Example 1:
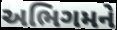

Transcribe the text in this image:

અભિગમને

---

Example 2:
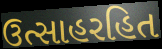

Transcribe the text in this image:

ઉત્સાહરહિત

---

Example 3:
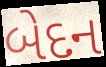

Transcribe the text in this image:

બેદન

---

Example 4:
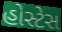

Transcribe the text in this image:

હોસ્ટેસ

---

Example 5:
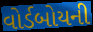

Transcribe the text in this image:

વોર્ડબોયની